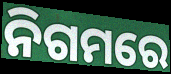
ନିଗମରେ